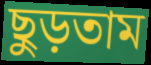
ছুড়তাম